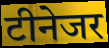
टीनेजर